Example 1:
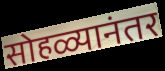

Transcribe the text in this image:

सोहळ्यानंतर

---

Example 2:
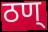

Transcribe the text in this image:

ठण्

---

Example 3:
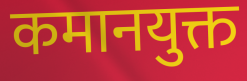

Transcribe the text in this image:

कमानयुक्त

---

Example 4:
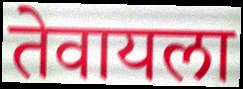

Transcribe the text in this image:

तेवायला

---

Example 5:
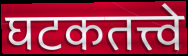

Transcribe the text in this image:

घटकतत्त्वे